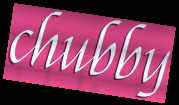
chubby